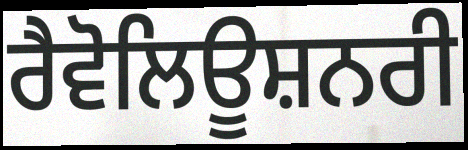
ਰੈਵੋਲਿਊਸ਼ਨਰੀ